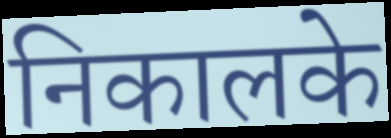
निकालके